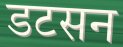
डटसन